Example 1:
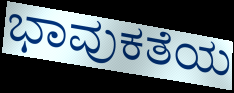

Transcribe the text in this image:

ಭಾವುಕತೆಯ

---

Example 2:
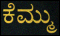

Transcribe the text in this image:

ಕೆಮ್ಮು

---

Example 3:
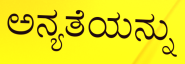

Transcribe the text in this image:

ಅನ್ಯತೆಯನ್ನು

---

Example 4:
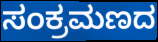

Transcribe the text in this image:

ಸಂಕ್ರಮಣದ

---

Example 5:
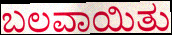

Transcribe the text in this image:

ಬಲವಾಯಿತು